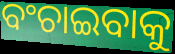
ବଂଚାଇବାକୁ